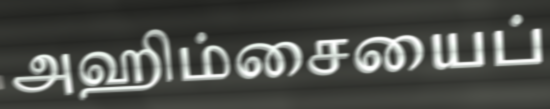
அஹிம்சையைப்